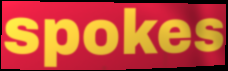
spokes